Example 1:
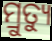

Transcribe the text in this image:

ମ୍ରୁତ୍ୟୁ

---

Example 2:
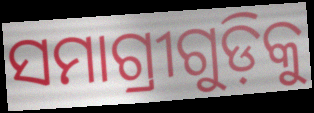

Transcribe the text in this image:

ସମାଗ୍ରୀଗୁଡ଼ିକୁ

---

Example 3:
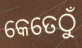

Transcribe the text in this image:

କେତେଠୁଁ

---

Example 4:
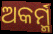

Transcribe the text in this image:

ଅକର୍ମ୍ମ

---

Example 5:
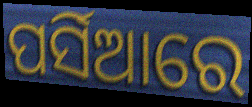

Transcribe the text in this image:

ପର୍ସିଆରେ